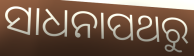
ସାଧନାପଥରୁ